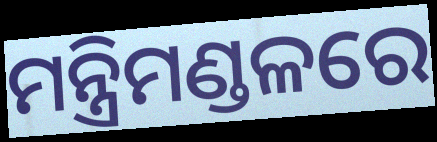
ମନ୍ତ୍ରିମଣ୍ଡଳରେ